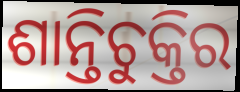
ଶାନ୍ତିଚୁକ୍ତିର